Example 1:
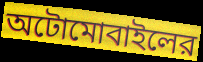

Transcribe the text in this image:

অটোমোবাইলের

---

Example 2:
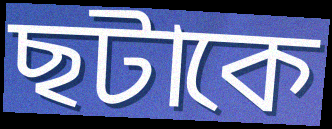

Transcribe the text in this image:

ছটাকে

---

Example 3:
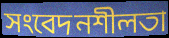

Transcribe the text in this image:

সংবেদনশীলতা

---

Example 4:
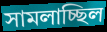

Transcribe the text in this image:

সামলাচ্ছিল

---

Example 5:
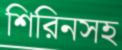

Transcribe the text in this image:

শিরিনসহ